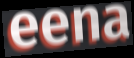
eena